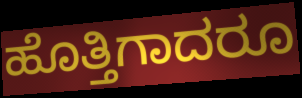
ಹೊತ್ತಿಗಾದರೂ